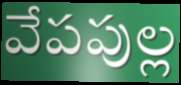
వేపపుల్ల